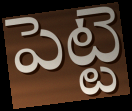
పెట్టె